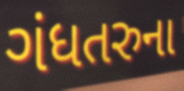
ગંધતરુના